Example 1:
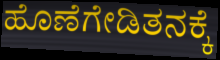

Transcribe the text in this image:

ಹೊಣೆಗೇಡಿತನಕ್ಕೆ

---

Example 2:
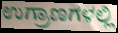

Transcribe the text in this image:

ಉಗ್ರಾಣಗಳಲ್ಲಿ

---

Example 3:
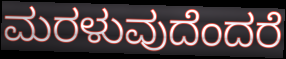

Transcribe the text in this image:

ಮರಳುವುದೆಂದರೆ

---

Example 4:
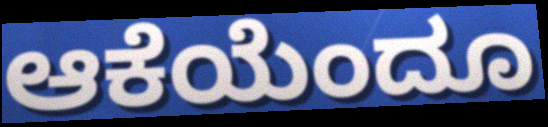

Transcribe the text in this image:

ಆಕೆಯೆಂದೂ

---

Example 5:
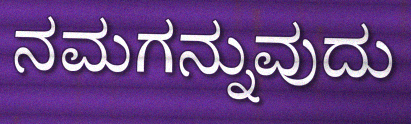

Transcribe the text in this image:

ನಮಗನ್ನುವುದು